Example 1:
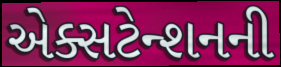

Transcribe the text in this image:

એક્સટેન્શનની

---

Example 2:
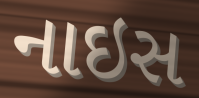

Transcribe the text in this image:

નાઇસ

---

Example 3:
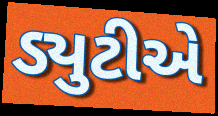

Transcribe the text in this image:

ડ્યુટીએ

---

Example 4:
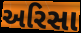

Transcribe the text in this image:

અરિસા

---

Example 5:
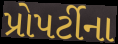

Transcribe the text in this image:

પ્રોપર્ટીના